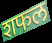
शफल